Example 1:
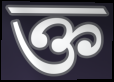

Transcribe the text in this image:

ক্ত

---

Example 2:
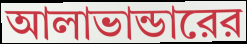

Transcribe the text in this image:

আলাভান্ডারের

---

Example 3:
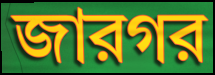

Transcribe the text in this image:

জারগর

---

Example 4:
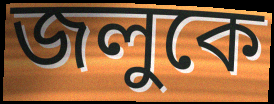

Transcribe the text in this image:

জলুকে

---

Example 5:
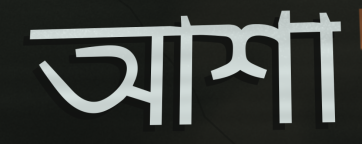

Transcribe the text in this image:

আশা